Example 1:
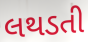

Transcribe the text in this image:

લથડતી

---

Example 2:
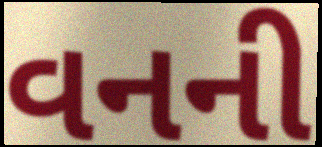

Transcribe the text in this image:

વનની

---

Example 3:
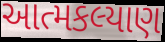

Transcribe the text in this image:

આત્મકલ્યાણ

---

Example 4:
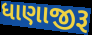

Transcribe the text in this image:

ધાણાજીરૂ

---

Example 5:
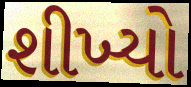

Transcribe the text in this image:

શીખ્યો